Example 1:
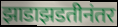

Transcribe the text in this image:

झाडाझडतीनंतर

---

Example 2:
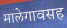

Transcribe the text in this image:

मालेगावसह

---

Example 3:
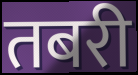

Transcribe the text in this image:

तबरी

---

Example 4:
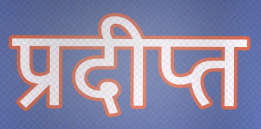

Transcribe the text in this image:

प्रदीप्त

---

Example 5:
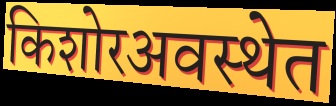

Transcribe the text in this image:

किशोरअवस्थेत